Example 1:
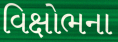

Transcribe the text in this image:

વિક્ષોભના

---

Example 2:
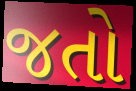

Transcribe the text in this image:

જતો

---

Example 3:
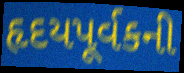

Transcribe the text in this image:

હૃદયપૂર્વકની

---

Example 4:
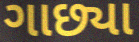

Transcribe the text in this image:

ગાછ્યા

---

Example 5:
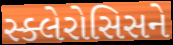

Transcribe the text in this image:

સ્ક્લેરોસિસને